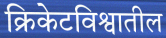
क्रिकेटविश्वातील